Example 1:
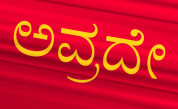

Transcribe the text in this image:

ಅವ್ರದೇ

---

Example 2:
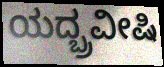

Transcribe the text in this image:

ಯದ್ಬ್ರವೀಷಿ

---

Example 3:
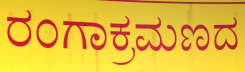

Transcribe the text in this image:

ರಂಗಾಕ್ರಮಣದ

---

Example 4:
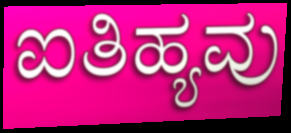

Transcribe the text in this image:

ಐತಿಹ್ಯವು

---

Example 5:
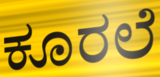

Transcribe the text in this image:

ಕೂರಲೆ